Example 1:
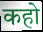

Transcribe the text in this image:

कहो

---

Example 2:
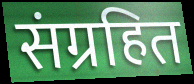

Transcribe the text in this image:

संग्रहित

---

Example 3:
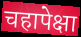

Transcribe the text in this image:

चहापेक्षा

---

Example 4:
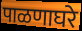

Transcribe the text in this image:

पाळणाघरे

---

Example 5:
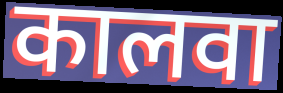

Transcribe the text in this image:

कालवा